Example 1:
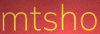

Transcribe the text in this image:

mtsho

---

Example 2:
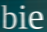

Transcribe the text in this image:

bie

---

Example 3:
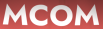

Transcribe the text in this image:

MCOM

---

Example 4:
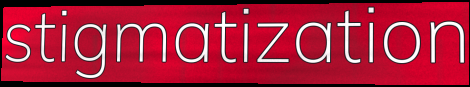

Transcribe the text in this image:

stigmatization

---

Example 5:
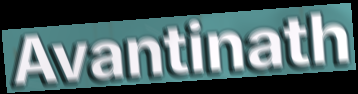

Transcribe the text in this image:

Avantinath